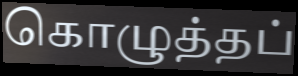
கொழுத்தப்